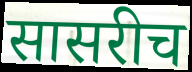
सासरीच